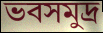
ভবসমুদ্র